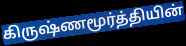
கிருஷ்ணமூர்த்தியின்